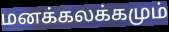
மனக்கலக்கமும்